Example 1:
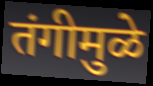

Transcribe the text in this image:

तंगीमुळे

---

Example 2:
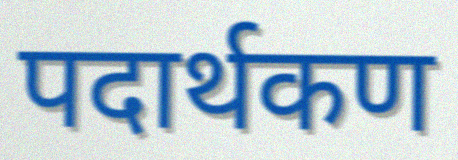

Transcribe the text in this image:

पदार्थकण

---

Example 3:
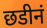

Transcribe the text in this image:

छडीनं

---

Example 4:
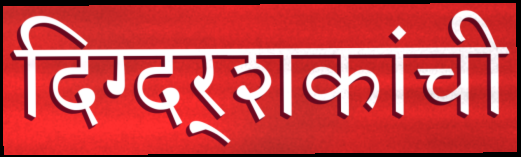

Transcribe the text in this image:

दिग्दर्शकांची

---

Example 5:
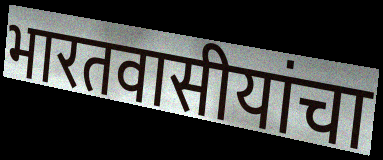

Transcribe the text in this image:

भारतवासीयांचा